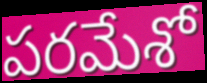
పరమేశో